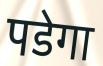
पडेगा